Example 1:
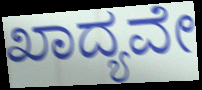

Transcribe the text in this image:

ಖಾದ್ಯವೇ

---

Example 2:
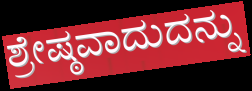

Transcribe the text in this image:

ಶ್ರೇಷ್ಠವಾದುದನ್ನು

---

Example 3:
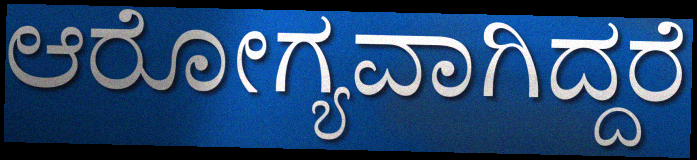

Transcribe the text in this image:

ಆರೋಗ್ಯವಾಗಿದ್ದರೆ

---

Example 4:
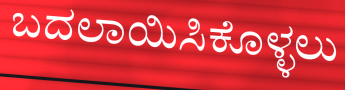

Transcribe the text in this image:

ಬದಲಾಯಿಸಿಕೊಳ್ಳಲು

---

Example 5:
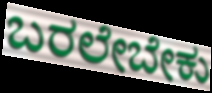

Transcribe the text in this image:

ಬರಲೇಬೇಕು